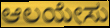
ಆಲಯೇಸು